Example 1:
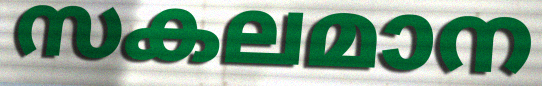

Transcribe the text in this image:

സകലമാന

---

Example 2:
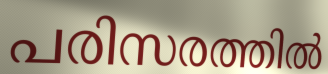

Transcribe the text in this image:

പരിസരത്തിൽ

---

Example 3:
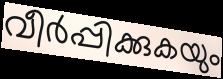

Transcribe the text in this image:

വീർപ്പിക്കുകയും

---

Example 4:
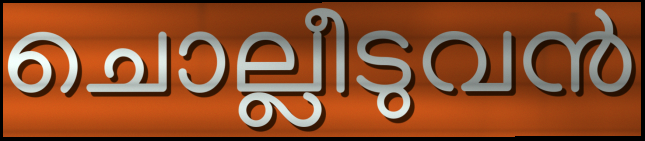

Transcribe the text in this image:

ചൊല്ലീടുവൻ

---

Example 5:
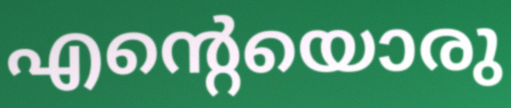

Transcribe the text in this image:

എന്റെയൊരു